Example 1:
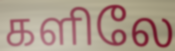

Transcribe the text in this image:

களிலே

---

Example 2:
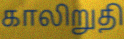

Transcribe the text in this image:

காலிறுதி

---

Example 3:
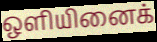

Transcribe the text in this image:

ஒளியினைக்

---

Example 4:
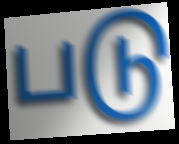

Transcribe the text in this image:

படு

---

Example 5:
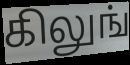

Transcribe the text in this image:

கிலுங்